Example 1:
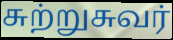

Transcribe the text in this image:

சுற்றுசுவர்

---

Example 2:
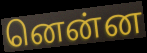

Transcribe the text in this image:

னென்ன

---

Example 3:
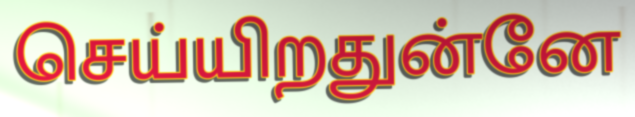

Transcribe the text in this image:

செய்யிறதுன்னே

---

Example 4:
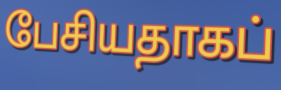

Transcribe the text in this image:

பேசியதாகப்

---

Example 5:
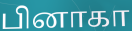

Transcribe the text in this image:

பினாகா